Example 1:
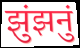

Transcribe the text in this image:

झुंझनुं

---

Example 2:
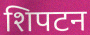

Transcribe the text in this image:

शिपटन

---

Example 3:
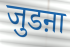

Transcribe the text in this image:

जुडऩा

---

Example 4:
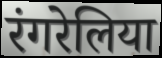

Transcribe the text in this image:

रंगरेलिया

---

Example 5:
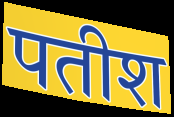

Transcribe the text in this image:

पतीश